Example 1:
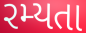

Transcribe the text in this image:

રમ્યતા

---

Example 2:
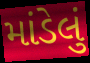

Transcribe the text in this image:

માંડેલું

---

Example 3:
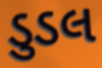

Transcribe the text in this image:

ડુડલ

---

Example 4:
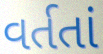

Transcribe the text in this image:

વર્તતાં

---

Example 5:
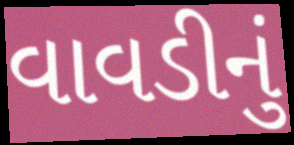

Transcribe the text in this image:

વાવડીનું